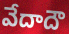
వేదాదౌ